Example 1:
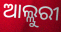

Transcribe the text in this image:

ଆଲ୍ଲୁରୀ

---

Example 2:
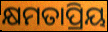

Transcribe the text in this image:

କ୍ଷମତାପ୍ରିୟ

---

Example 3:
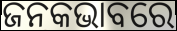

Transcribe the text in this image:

ଜନକଭାବରେ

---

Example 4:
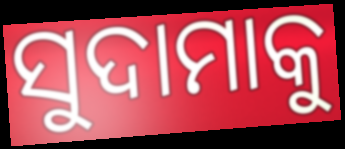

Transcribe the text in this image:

ସୁଦାମାକୁ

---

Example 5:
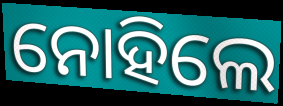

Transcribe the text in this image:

ନୋହିଲେ